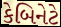
કેબિનેટે